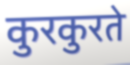
कुरकुरते